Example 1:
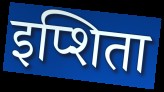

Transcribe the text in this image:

इप्शिता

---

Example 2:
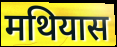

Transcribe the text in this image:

मथियास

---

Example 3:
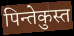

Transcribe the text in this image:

पिन्तेकुस्त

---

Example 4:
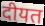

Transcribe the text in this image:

दीयत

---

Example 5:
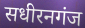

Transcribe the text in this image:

सधीरनगंज